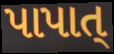
પાપાત્